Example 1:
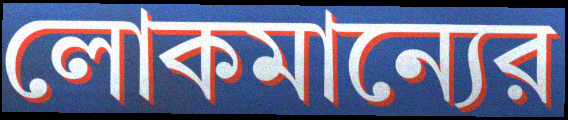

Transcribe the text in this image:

লোকমান্যের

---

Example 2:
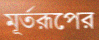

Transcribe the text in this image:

মূর্তরূপের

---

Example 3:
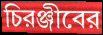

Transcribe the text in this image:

চিরঞ্জীবের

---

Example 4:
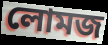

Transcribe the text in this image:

লোমজ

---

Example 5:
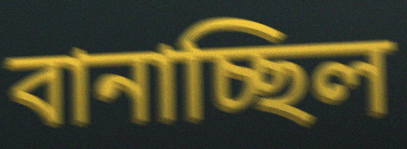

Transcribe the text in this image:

বানাচ্ছিল